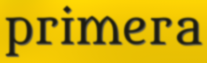
primera